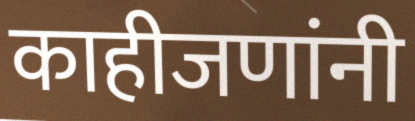
काहीजणांनी